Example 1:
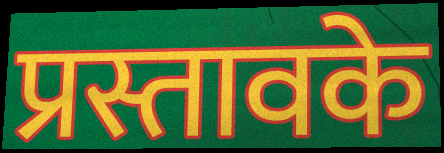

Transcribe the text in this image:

प्रस्तावके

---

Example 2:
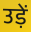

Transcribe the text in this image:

उड़ें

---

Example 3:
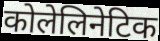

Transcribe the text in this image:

कोलेलिनेटिक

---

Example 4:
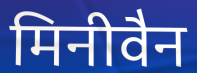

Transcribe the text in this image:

मिनीवैन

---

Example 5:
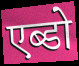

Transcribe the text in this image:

एब्डो